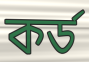
কৰ্ড